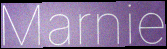
Marnie